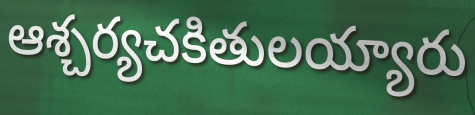
ఆశ్చర్యచకితులయ్యారు